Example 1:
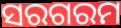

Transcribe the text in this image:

ସରଗରମ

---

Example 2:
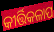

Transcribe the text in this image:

କୀର୍ତ୍ତିକଳାପ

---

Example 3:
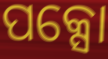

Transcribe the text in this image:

ପକ୍ସୋ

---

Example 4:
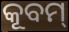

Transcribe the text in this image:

କୂବମ୍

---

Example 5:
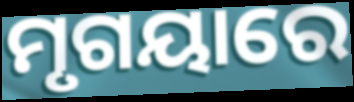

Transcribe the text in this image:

ମୃଗୟାରେ